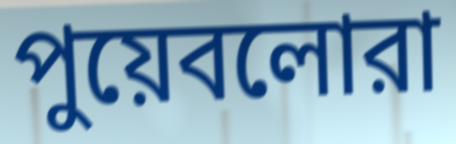
পুয়েবলোরা